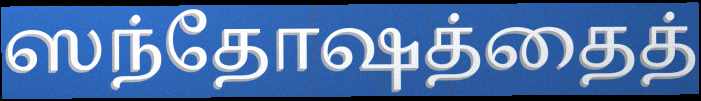
ஸந்தோஷத்தைத்